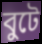
বুটে